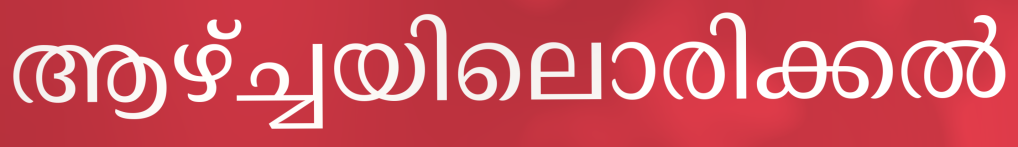
ആഴ്ച്ചയിലൊരിക്കൽ